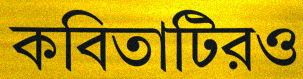
কবিতাটিরও